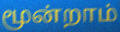
மூன்றாம்